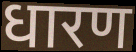
धारण